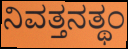
ನಿವತ್ತನತ್ಥಂ